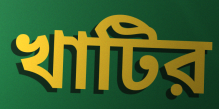
খাটির